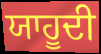
ਯਾਹੂਦੀ